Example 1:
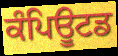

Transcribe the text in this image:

ਕੰਪਿਊਟਡ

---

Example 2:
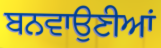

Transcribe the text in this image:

ਬਨਵਾਉਣੀਆਂ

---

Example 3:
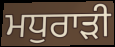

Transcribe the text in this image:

ਮਧੁਰਾੜੀ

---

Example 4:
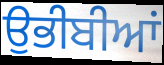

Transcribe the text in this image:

ਉਭੀਬੀਆਂ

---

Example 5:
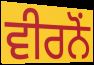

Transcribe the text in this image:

ਵੀਰਨੋਂ